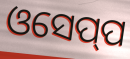
ଓସେପ୍‍ପ